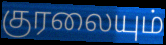
குரலையும்